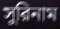
সুরিনাম